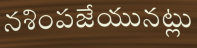
నశింపజేయునట్లు